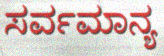
ಸರ್ವಮಾನ್ಯ